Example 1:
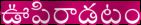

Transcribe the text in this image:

ఊపిరాడటం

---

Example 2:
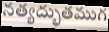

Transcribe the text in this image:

నత్యద్భుతముగ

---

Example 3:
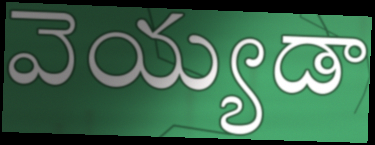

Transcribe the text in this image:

వెయ్యడా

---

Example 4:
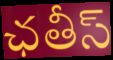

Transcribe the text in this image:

ఛతీస్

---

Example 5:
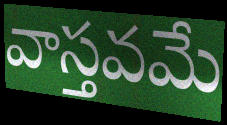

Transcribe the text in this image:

వాస్తవమే